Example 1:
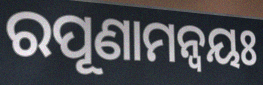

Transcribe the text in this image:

ରପୂଣାମନ୍ଵୟଃ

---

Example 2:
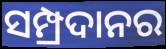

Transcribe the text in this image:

ସମ୍ପ୍ରଦାନର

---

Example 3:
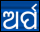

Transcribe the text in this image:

ଅର୍ପ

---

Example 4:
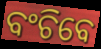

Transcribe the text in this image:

ବଂଚିବେ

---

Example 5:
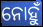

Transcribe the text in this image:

ନୋହୁଁ